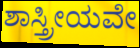
ಶಾಸ್ತ್ರೀಯವೇ